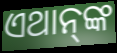
ଏଥାନ୍‍ଙ୍କ